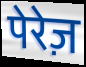
पेरेज़